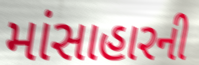
માંસાહારની